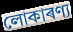
লোকাৰণ্য